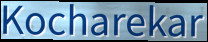
Kocharekar